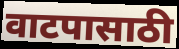
वाटपासाठी